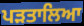
ਪੜਤਾਲਿਆ